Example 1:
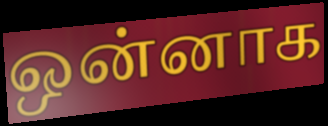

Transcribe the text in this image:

ஒன்னாக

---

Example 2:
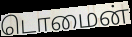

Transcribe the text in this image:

டொமைன்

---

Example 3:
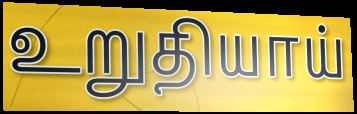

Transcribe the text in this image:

உறுதியாய்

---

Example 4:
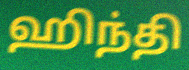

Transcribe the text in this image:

ஹிந்தி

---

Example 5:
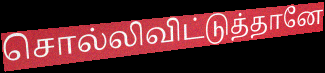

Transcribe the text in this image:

சொல்லிவிட்டுத்தானே